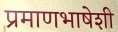
प्रमाणभाषेशी